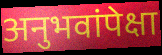
अनुभवांपेक्षा